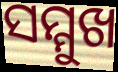
ସମ୍ମୁଖ